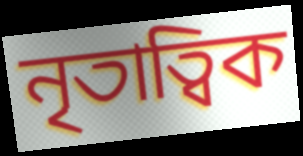
নৃতাত্বিক